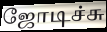
ஜோடிச்சு